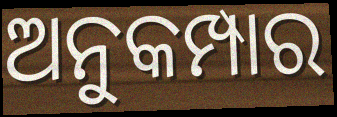
ଅନୁକମ୍ପାର